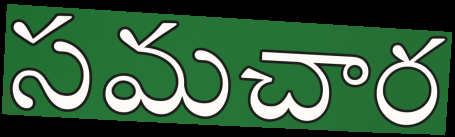
సమచార